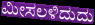
ಮೀಸಲಳಿದುದು